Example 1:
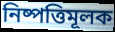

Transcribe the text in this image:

নিষ্পত্তিমূলক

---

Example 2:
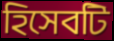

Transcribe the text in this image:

হিসেবটি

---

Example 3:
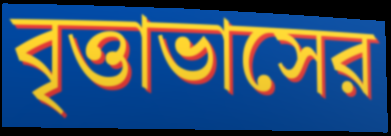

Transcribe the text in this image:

বৃত্তাভাসের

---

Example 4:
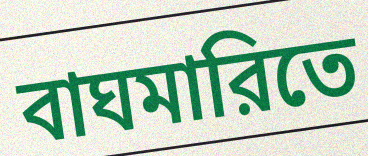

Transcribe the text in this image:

বাঘমারিতে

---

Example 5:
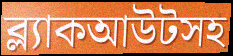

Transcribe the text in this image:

ব্ল্যাকআউটসহ